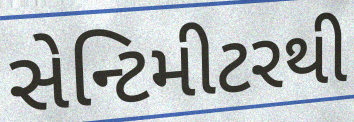
સેન્ટિમીટરથી